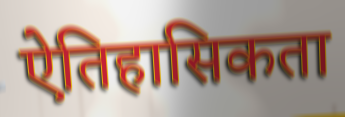
ऐतिहासिकता